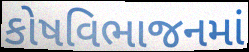
કોષવિભાજનમાં